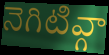
నెగిటివ్గా